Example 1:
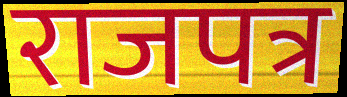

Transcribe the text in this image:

राजपत्र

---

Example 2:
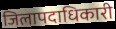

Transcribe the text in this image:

जिलापदाधिकारी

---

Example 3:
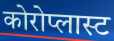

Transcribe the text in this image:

कोरोप्लास्ट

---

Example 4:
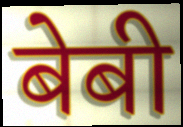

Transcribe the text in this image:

बेबी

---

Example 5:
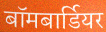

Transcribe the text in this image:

बॉमबार्डियर